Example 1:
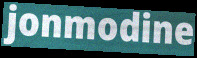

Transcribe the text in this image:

jonmodine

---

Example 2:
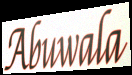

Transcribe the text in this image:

Abuwala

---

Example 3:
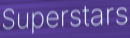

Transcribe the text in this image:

Superstars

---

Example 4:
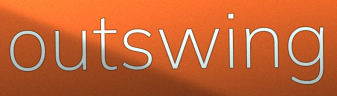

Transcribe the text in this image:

outswing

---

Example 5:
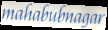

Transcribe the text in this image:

mahabubnagar